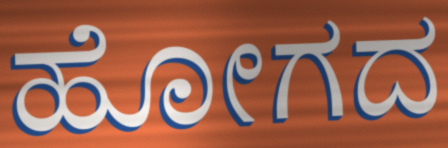
ಹೋಗದ